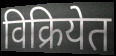
विक्रियेत